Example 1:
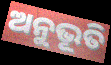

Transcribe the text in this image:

ଅନୁଭୂତି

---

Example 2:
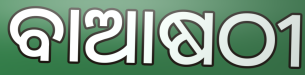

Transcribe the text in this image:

ବାଆଷଠୀ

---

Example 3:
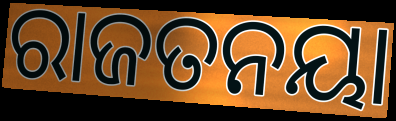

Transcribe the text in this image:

ରାଜତନୟା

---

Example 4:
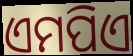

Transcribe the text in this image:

ଏମପିଏ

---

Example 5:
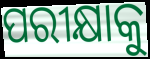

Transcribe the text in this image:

ପରୀକ୍ଷାକୁ